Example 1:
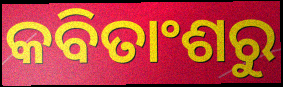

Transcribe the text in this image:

କବିତାଂଶରୁ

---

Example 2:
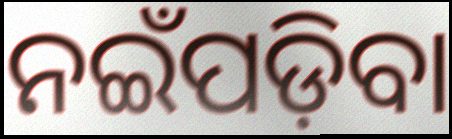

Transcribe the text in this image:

ନଇଁପଡ଼ିବା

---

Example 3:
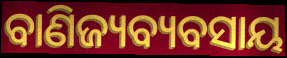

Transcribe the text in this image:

ବାଣିଜ୍ୟବ୍ୟବସାୟ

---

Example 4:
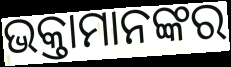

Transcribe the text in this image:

ଭକ୍ତାମାନଙ୍କର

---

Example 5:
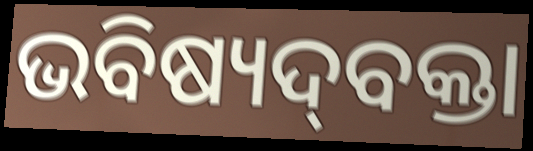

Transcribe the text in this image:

ଭବିଷ୍ୟଦ୍‌ବକ୍ତା